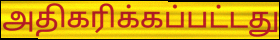
அதிகரிக்கப்பட்டது